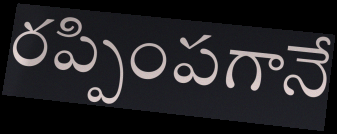
రప్పింపగానే